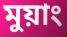
মুয়াং